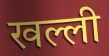
खल्ली